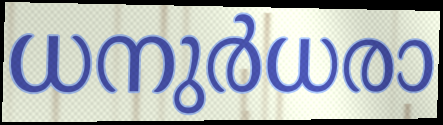
ധനുർധരാ